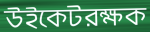
উইকেটরক্ষক